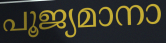
പൂജ്യമാനാ